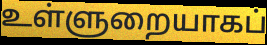
உள்ளுறையாகப்